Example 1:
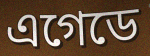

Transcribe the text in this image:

এগেডে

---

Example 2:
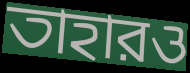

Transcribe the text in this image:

তাহারও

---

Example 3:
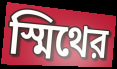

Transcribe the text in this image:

স্মিথের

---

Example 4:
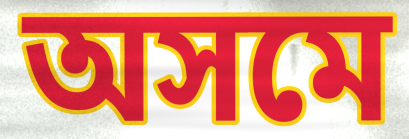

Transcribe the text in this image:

অসমে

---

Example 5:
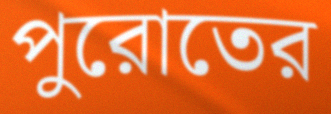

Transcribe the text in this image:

পুরোতের